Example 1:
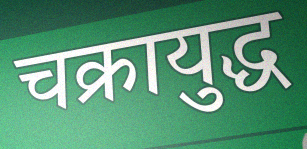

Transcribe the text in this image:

चक्रायुद्ध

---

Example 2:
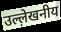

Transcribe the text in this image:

उल्ल़ेखनीय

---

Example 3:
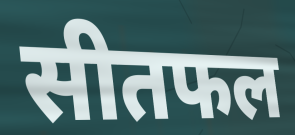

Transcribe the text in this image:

सीतफल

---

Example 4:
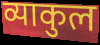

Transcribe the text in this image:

व्याकुल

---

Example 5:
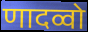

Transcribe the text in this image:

णादव्वो